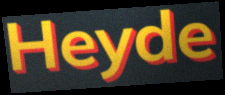
Heyde